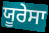
ਯੂਰੇਸਾ